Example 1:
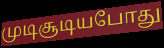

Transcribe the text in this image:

முடிசூடியபோது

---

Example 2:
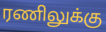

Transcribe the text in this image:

ரணிலுக்கு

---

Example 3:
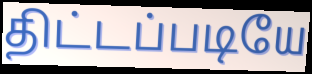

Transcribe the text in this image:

திட்டப்படியே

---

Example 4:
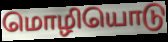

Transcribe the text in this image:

மொழியொடு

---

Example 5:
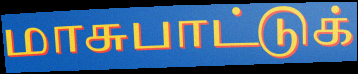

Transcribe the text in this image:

மாசுபாட்டுக்